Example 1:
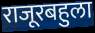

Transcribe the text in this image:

राजूरबहुला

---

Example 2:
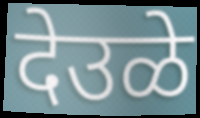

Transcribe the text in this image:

देउळे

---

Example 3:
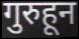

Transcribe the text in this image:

गुरुहून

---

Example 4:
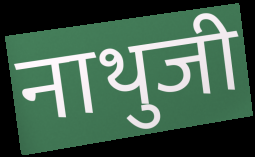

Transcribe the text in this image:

नाथुजी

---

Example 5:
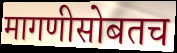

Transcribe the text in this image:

मागणीसोबतच